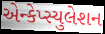
એન્કેપ્સ્યુલેશન